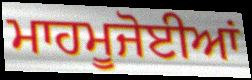
ਮਾਹਮੂਜੋਈਆਂ